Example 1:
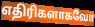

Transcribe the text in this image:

எதிரிகளாகவோ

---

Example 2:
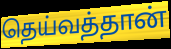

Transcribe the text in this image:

தெய்வத்தான்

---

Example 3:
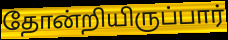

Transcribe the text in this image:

தோன்றியிருப்பார்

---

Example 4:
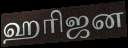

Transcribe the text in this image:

ஹரிஜன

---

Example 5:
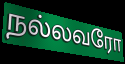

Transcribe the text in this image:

நல்லவரோ